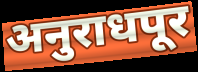
अनुराधपूर